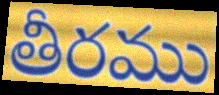
తీరము